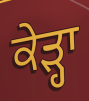
ਕੇੜ੍ਹਾ